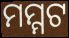
ମମ୍ମଟ